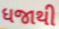
ધજાથી